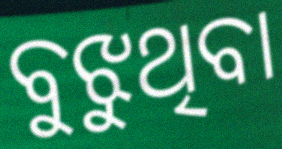
ବୁଝୁଥିବା